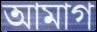
আমাগ